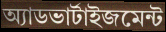
অ্যাডভার্টাইজমেন্ট